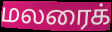
மலரைக்